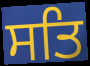
ਸਤਿ